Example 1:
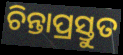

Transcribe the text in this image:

ଚିନ୍ତାପ୍ରସ୍ତୁତ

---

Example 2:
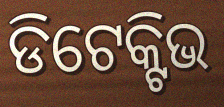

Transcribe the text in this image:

ଡିଟେକ୍ଟିଭ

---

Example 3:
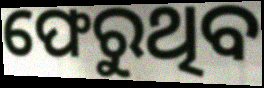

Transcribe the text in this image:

ଫେରୁଥିବ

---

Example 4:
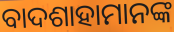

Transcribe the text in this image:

ବାଦଶାହାମାନଙ୍କ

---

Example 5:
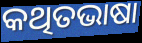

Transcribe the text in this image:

କଥିତଭାଷା